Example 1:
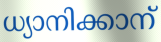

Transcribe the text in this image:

ധ്യാനിക്കാന്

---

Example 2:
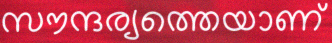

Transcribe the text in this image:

സൗന്ദര്യത്തെയാണ്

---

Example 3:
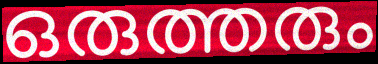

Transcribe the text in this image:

ഒരുത്തരും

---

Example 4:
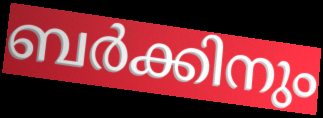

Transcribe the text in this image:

ബർക്കിനും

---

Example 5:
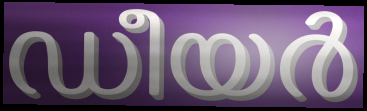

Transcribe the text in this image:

ഡീയർ